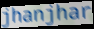
jhanjhar